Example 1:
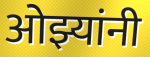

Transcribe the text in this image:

ओझ्यांनी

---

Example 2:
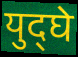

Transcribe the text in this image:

युद्घे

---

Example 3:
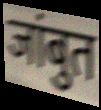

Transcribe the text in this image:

जांबुत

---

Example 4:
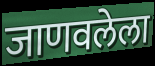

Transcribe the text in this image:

जाणवलेला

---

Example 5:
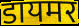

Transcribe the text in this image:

डायमर